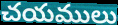
చయములు